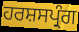
ਹਰਸ਼ਸਪ੍ਰੰਗ